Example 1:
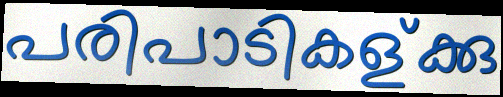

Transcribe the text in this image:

പരിപാടികള്ക്കു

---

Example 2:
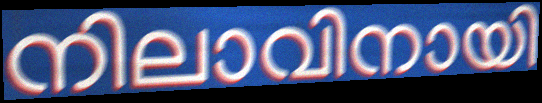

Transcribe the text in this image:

നിലാവിനായി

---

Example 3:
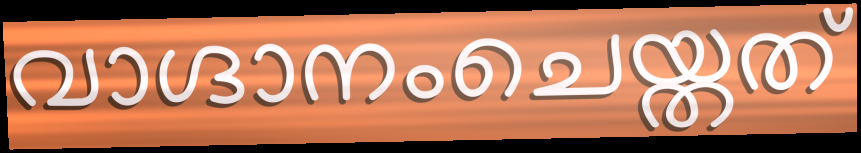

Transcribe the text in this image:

വാഗ്ദാനംചെയ്തത്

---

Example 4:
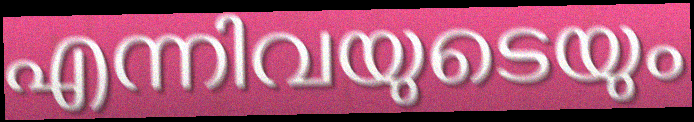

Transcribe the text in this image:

എന്നിവയുടെയും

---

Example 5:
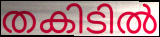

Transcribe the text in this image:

തകിടിൽ